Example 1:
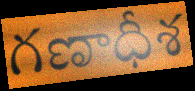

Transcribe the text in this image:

గణాధీశ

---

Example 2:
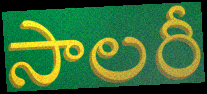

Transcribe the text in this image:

సాలరీ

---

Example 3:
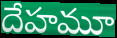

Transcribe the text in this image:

దేహమూ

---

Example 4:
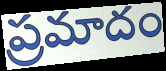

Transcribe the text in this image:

ప్రమాదం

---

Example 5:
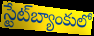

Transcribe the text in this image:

స్టేట్‌బ్యాంకులో